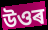
উওৰ